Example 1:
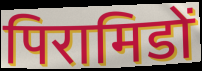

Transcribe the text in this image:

पिरामिडों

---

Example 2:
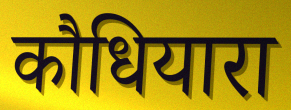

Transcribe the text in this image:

कौधियारा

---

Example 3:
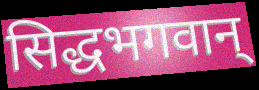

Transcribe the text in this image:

सिद्धभगवान्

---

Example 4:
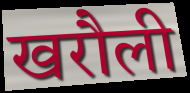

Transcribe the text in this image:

खरौली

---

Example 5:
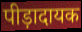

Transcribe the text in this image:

पीड़ादायक